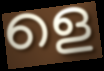
ളെ